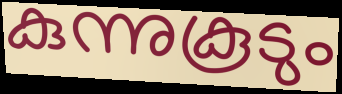
കുന്നുകൂടും